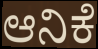
ಆನಿಕೆ